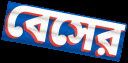
বেসের